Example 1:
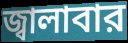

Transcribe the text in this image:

জ্বালাবার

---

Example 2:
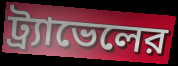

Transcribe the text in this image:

ট্র্যাভেলের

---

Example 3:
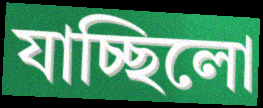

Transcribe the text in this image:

যাচ্ছিলো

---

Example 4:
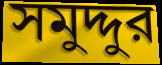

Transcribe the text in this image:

সমুদ্দুর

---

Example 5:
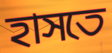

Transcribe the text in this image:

হাসতে